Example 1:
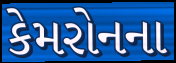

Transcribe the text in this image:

કેમરોનના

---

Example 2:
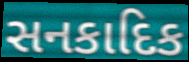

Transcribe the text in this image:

સનકાદિક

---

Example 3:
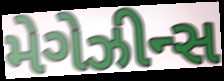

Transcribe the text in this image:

મેગેઝીન્સ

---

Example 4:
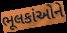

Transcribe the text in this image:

ભૂલકાંઓને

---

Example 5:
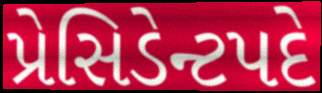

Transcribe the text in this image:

પ્રેસિડેન્ટપદે